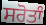
ਸਰੋਤਾੰ